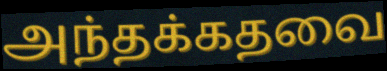
அந்தக்கதவை